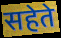
सहेते